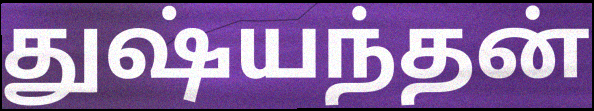
துஷ்யந்தன்